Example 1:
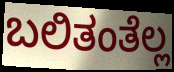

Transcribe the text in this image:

ಬಲಿತಂತೆಲ್ಲ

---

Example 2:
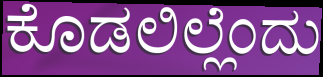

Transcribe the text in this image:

ಕೊಡಲಿಲ್ಲೆಂದು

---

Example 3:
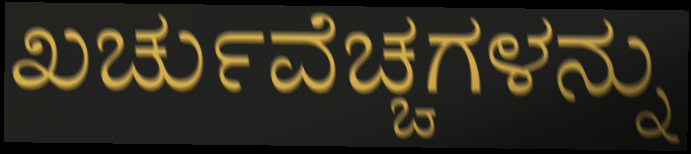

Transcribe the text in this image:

ಖರ್ಚುವೆಚ್ಚಗಳನ್ನು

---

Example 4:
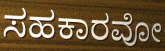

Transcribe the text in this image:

ಸಹಕಾರವೋ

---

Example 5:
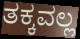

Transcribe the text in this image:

ತಕ್ಕವಲ್ಲ